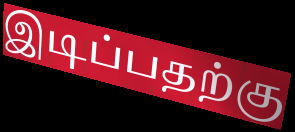
இடிப்பதற்கு